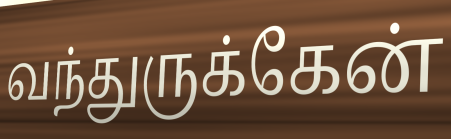
வந்துருக்கேன்